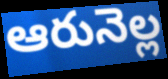
ఆరునెల్ల